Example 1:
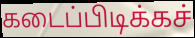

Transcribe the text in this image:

கடைப்பிடிக்கச்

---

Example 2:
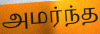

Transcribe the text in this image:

அமர்ந்த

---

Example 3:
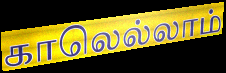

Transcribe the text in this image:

காலெல்லாம்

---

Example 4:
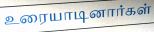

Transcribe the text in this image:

உரையாடினார்கள்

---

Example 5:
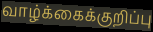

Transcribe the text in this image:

வாழ்க்கைக்குறிப்பு